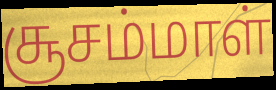
சூசம்மாள்